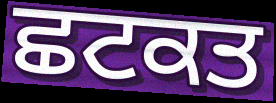
ਛਟਕਤ